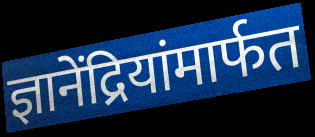
ज्ञानेंद्रियांमार्फत